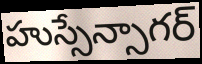
హుస్సేన్సాగర్